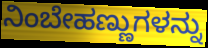
ನಿಂಬೇಹಣ್ಣುಗಳನ್ನು